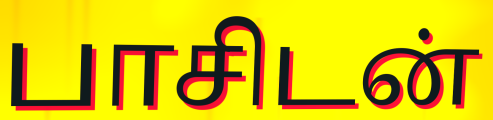
பாசிடன்